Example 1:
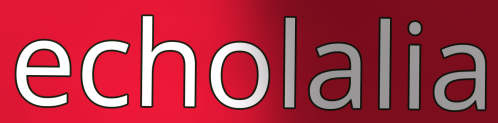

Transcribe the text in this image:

echolalia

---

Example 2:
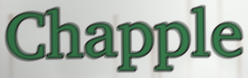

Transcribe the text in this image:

Chapple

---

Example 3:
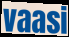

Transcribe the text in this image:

vaasi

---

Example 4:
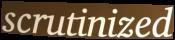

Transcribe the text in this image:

scrutinized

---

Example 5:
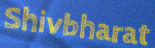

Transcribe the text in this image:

Shivbharat